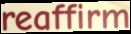
reaffirm